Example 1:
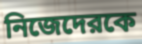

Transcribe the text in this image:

নিজেদেরকে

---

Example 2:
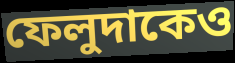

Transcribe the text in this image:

ফেলুদাকেও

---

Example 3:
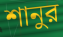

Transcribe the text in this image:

শানুর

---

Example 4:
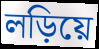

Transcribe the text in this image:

লড়িয়ে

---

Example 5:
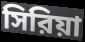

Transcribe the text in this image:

সিরিয়া